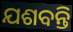
ଯଶବନ୍ତି